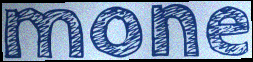
mone